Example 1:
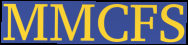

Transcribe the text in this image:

MMCFS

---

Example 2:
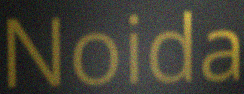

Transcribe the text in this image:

Noida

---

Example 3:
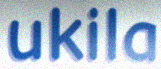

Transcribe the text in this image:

ukila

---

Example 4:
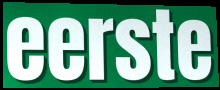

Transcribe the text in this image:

eerste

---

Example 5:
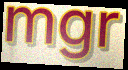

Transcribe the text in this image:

mgr